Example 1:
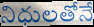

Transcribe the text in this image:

నిధులతోనే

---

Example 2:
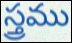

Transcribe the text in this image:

స్త్రము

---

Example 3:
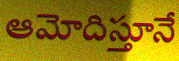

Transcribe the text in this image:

ఆమోదిస్తూనే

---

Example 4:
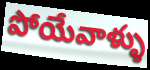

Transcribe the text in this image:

పోయేవాళ్ళు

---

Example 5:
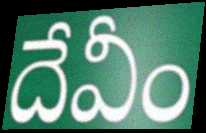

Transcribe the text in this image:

దేవీం